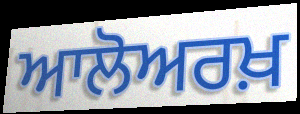
ਆਲੋਅਰਖ਼